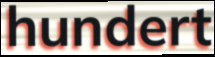
hundert